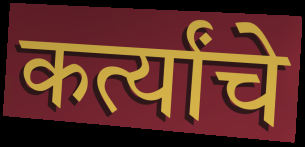
कर्त्यांचे